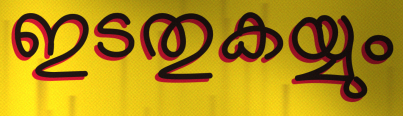
ഇടതുകയ്യും